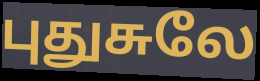
புதுசுலே